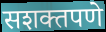
सशक्तपणे